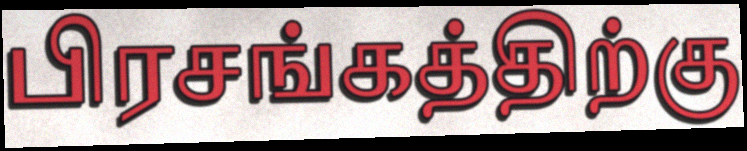
பிரசங்கத்திற்கு